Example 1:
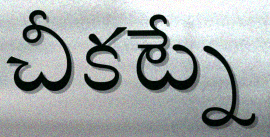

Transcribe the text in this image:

చీకట్నే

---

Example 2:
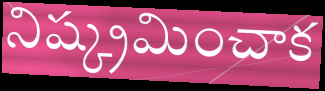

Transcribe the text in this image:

నిష్క్రమించాక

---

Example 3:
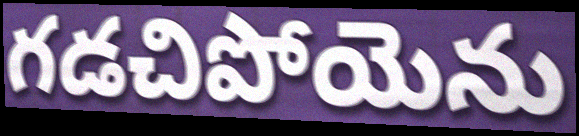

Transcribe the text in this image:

గడచిపోయెను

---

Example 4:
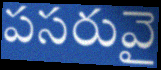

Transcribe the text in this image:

పసరువై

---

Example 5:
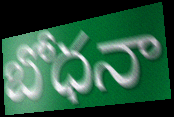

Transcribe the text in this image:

బోధనా